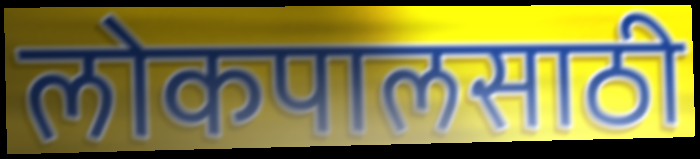
लोकपालसाठी